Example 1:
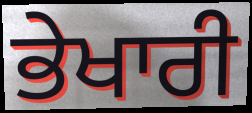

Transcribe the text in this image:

ਭੇਖਾਰੀ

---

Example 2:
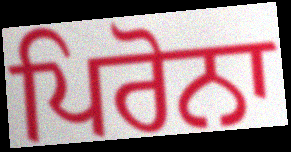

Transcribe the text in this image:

ਪਿਰੋਨਾ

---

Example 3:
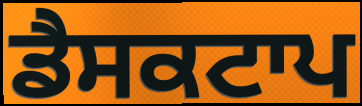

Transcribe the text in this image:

ਡੈਸਕਟਾਪ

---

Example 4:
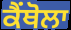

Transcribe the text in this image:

ਕੈਂਥੋਲਾ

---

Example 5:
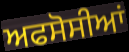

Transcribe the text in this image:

ਅਫਸੋਸੀਆਂ